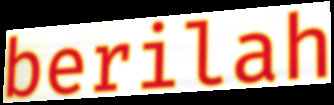
berilah